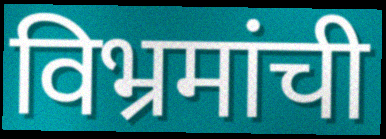
विभ्रमांची